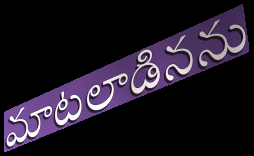
మాటలాడినను